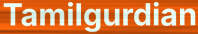
Tamilgurdian